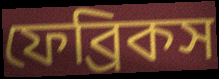
ফেব্রিকস